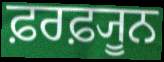
ਫ਼ਰਫ਼੍ਯੂਨ